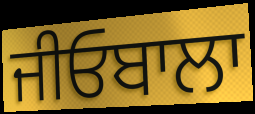
ਜੀਓਬਾਲਾ